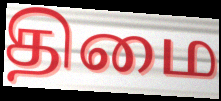
திமை